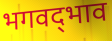
भगवद्भाव